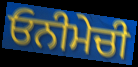
ਓਨੀਮੇਚੀ